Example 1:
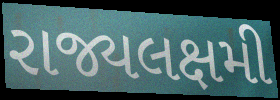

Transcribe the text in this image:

રાજ્યલક્ષમી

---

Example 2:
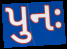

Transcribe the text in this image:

પુનઃ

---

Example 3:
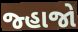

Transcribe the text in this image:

જ્હાજો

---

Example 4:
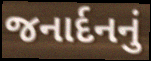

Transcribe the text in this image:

જનાર્દનનું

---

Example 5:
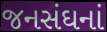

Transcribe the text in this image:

જનસંઘનાં